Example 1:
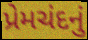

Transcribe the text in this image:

પ્રેમચંદનું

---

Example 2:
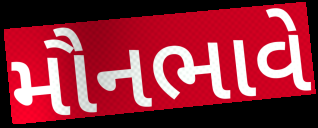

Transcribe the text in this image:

મૌનભાવે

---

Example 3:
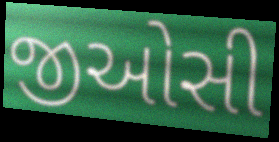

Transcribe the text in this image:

જીઓસી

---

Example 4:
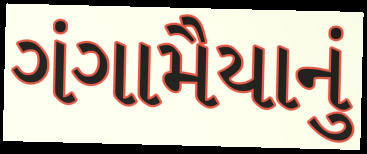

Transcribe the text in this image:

ગંગામૈયાનું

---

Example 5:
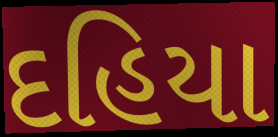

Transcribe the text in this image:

દહિયા